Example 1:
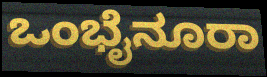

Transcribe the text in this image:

ಒಂಭೈನೂರಾ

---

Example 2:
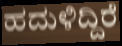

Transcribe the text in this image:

ಹದುಳಿದ್ದಿರೆ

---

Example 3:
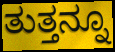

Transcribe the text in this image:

ತುತ್ತನ್ನೂ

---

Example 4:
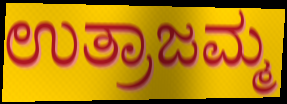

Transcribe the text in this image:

ಉತ್ರಾಜಮ್ಮ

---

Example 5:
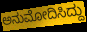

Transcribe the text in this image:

ಅನುಮೋದಿಸಿದ್ದು